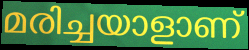
മരിച്ചയാളാണ്